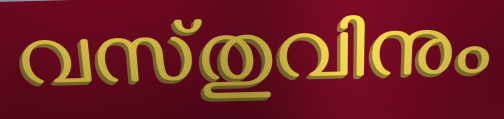
വസ്‌തുവിനും